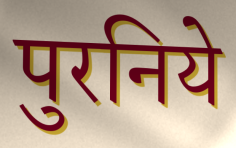
पुरनिये